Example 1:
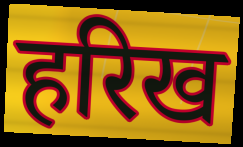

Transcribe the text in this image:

हरिख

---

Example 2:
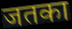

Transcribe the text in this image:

जतका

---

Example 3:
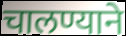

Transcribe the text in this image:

चालण्याने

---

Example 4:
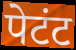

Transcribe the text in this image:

पेटंट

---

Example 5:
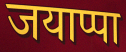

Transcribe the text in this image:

जयाप्पा